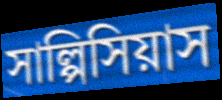
সাল্পিসিয়াস